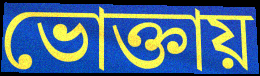
ভোক্তায়